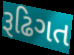
રૂઢિગત